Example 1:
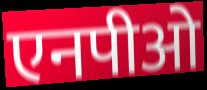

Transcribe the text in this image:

एनपीओ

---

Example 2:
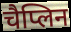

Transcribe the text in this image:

चैप्लिन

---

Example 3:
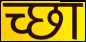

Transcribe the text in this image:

च्छा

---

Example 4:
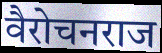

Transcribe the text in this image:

वैरोचनराज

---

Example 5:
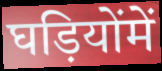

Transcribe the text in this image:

घड़ियोंमें